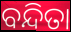
ବନ୍ଦିତା